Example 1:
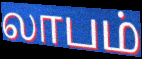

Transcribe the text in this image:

லாபம்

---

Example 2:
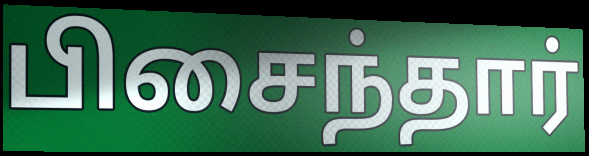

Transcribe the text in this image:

பிசைந்தார்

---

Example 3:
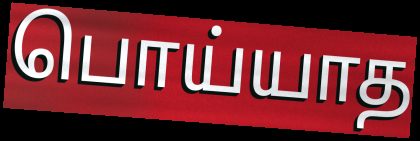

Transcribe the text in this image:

பொய்யாத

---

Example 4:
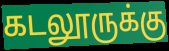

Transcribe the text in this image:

கடலூருக்கு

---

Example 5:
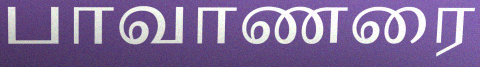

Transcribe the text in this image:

பாவாணரை